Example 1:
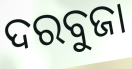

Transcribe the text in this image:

ଦରବୁଜା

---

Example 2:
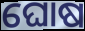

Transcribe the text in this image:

ଘୋଷ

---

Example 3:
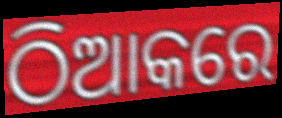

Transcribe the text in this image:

ଠିଆକରେ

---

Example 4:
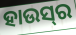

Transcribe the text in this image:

ହାଉସ୍‌ର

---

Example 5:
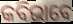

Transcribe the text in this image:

କବିଭାବେ